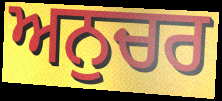
ਅਨੁਚਰ